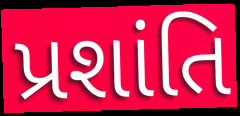
પ્રશાંતિ